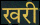
खरी